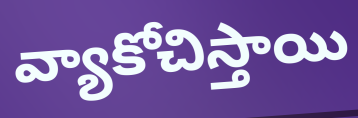
వ్యాకోచిస్తాయి